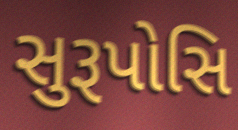
સુરૂપોસિ